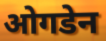
ओगडेन